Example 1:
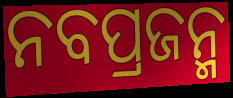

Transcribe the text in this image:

ନବପ୍ରଜନ୍ମ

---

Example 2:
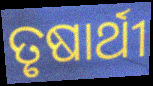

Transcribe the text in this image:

ତୃଷାର୍ଥୀ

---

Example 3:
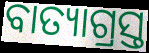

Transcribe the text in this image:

ବାତ୍ୟାଗ୍ରସ୍ତ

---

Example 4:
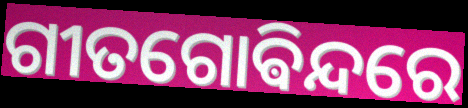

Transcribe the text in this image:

ଗୀତଗୋଵିନ୍ଦରେ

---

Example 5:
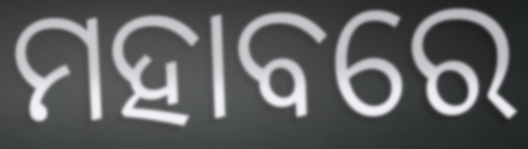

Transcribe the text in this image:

ମହାବରେ